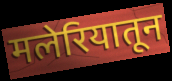
मलेरियातून